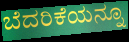
ಬೆದರಿಕೆಯನ್ನೂ